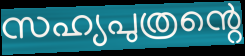
സഹ്യപുത്രന്റെ